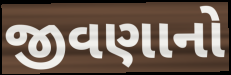
જીવણાનો